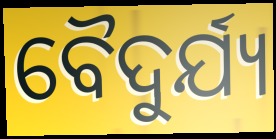
ବୈଦୁର୍ଯ୍ୟ